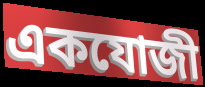
একযোজী